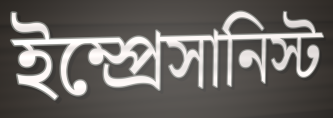
ইম্প্রেসানিস্ট